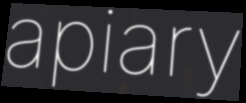
apiary